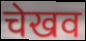
चेखव